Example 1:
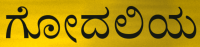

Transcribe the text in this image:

ಗೋದಲಿಯ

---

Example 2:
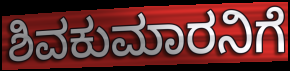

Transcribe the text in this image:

ಶಿವಕುಮಾರನಿಗೆ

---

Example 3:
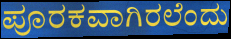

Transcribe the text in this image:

ಪೂರಕವಾಗಿರಲೆಂದು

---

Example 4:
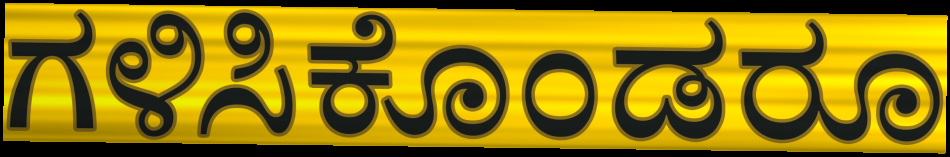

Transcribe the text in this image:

ಗಳಿಸಿಕೊಂಡರೂ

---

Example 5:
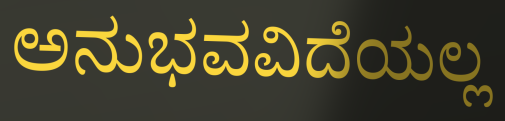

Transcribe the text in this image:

ಅನುಭವವಿದೆಯಲ್ಲ